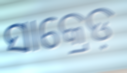
ସାକ୍ରେଡ଼